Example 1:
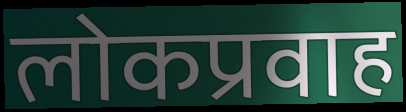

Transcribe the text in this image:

लोकप्रवाह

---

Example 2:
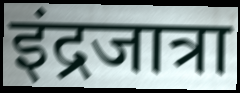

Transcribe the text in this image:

इंद्रजात्रा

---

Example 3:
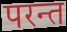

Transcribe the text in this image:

परन्त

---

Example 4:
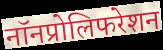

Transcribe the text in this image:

नॉनप्रोलिफरेशन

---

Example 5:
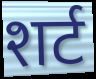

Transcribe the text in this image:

शर्ट